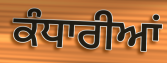
ਕੰਧਾਰੀਆਂ